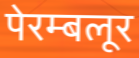
पेरम्बलूर